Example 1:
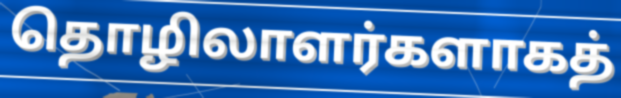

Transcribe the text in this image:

தொழிலாளர்களாகத்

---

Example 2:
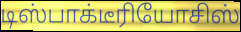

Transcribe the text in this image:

டிஸ்பாக்டீரியோசிஸ்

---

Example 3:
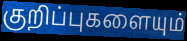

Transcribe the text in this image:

குறிப்புகளையும்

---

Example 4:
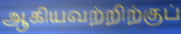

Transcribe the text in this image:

ஆகியவற்றிற்குப்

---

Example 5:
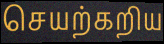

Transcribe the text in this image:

செயற்கறிய